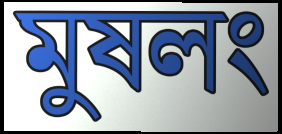
মুষলং